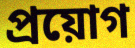
প্রয়োগ